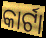
କାର୍ଟା